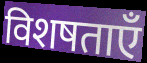
विशषताएँ